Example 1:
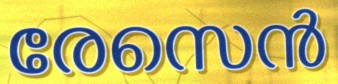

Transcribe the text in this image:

രേസെൻ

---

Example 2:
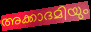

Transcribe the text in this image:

അക്കാദമിയും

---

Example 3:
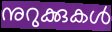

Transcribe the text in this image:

നുറുക്കുകൾ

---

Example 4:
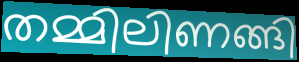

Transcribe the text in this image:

തമ്മിലിണങ്ങി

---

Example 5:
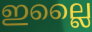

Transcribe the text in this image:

ഇല്ലൈ